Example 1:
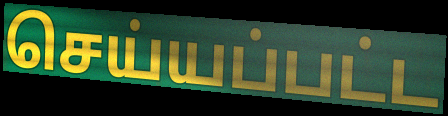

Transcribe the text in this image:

செய்யப்பட்ட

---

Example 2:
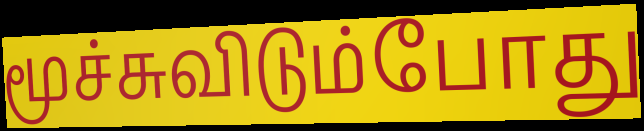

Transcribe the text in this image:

மூச்சுவிடும்போது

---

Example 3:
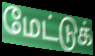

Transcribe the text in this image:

மேட்டுக்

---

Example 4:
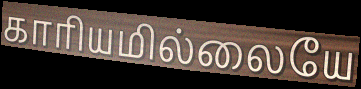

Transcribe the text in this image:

காரியமில்லையே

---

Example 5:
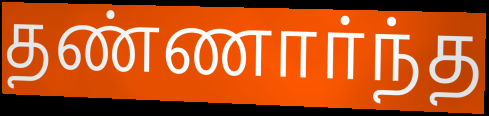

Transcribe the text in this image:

தண்ணார்ந்த